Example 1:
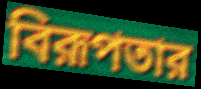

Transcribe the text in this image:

বিরূপতার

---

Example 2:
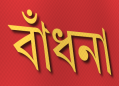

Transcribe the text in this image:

বাঁধনা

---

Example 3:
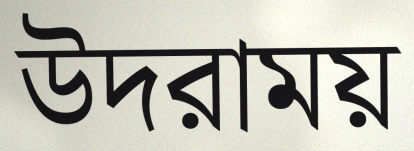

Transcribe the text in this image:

উদরাময়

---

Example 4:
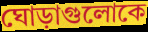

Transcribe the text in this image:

ঘোড়াগুলোকে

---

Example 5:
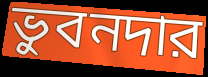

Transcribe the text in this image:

ভুবনদার